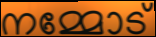
നമ്മോട്